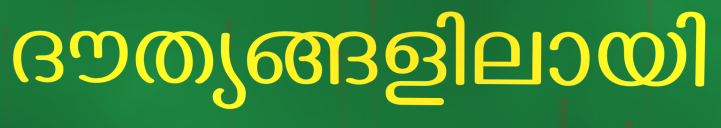
ദൗത്യങ്ങളിലായി